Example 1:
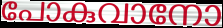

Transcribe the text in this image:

പോകുവാനോ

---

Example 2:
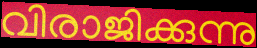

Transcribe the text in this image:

വിരാജിക്കുന്നു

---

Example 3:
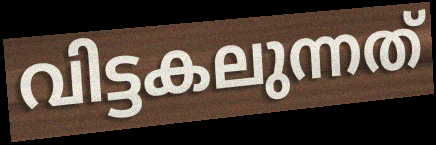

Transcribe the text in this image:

വിട്ടകലുന്നത്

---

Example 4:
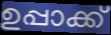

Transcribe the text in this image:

ഉപ്പാക്ക്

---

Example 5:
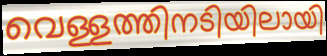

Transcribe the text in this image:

വെള്ളത്തിനടിയിലായി